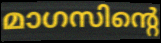
മാഗസിന്റെ